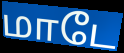
மாடே